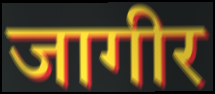
जागीर